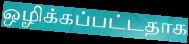
ஒழிக்கப்பட்டதாக